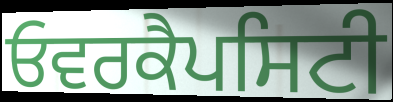
ਓਵਰਕੈਪਸਿਟੀ